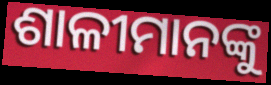
ଶାଳୀମାନଙ୍କୁ